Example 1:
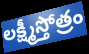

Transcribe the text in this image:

లక్ష్మీస్తోత్రం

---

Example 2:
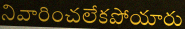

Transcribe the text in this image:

నివారించలేకపోయారు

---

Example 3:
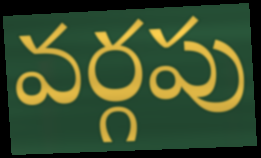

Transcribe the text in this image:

వర్గపు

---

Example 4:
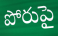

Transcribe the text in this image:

పోరుపై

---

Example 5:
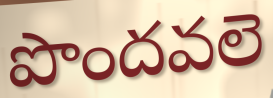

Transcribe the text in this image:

పొందవలె